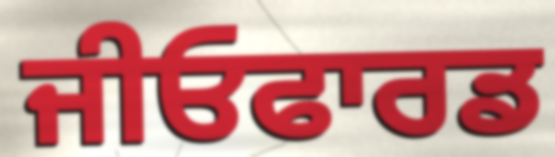
ਜੀਓਫਾਰਡ